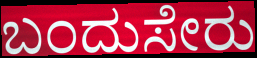
ಬಂದುಸೇರು